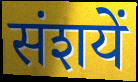
संशयें